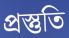
প্ৰস্তুতি